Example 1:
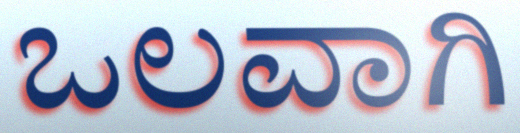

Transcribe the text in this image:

ಒಲವಾಗಿ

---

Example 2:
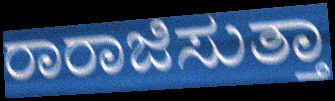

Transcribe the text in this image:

ರಾರಾಜಿಸುತ್ತಾ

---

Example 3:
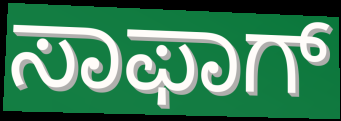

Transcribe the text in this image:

ಸಾಫಾಗ್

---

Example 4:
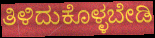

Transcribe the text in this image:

ತಿಳಿದುಕೊಳ್ಳಬೇಡಿ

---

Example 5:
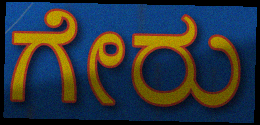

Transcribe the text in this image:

ಗೇರು